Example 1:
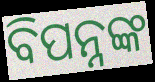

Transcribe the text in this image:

ବିପନ୍ନଙ୍କ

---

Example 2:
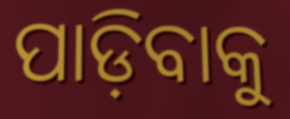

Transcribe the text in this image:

ପାଡ଼ିବାକୁ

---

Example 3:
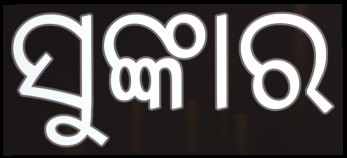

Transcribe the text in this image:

ସୁଙ୍କାର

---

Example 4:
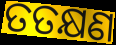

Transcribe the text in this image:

ତତକ୍ଷଣ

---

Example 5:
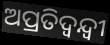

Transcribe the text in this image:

ଅପ୍ରତିଦ୍ବନ୍ଦ୍ବୀ